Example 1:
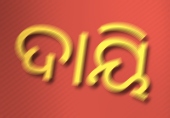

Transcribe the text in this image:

ଦାୟି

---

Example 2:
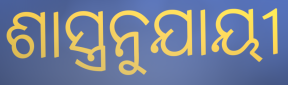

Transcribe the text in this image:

ଶାସ୍ତ୍ରନୁଯାୟୀ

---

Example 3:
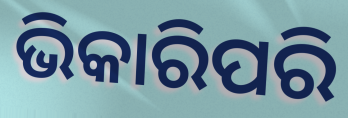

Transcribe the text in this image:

ଭିକାରିପରି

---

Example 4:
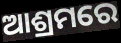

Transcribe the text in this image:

ଆଶ୍ରମରେ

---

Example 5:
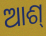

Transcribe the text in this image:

ଆଶ୍